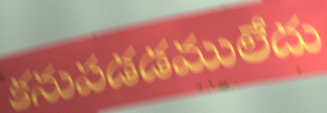
కనుపడడములేదు